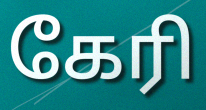
கேரி